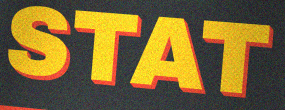
STAT